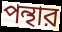
পন্থার